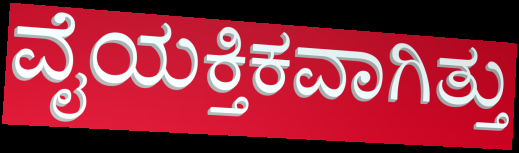
ವೈಯಕ್ತಿಕವಾಗಿತ್ತು